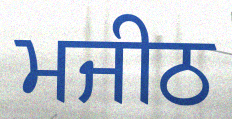
ਮਜੀਠ